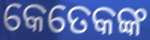
କେତେକଙ୍କ